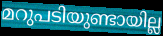
മറുപടിയുണ്ടായില്ല